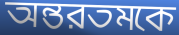
অন্তরতমকে